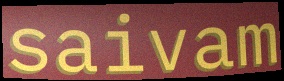
saivam